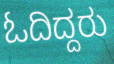
ಓದಿದ್ದರು